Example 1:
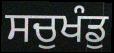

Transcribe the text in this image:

ਸਚੁਖੰਡੁ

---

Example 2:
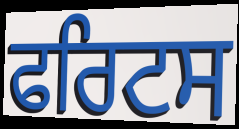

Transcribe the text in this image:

ਫਰਿਟਸ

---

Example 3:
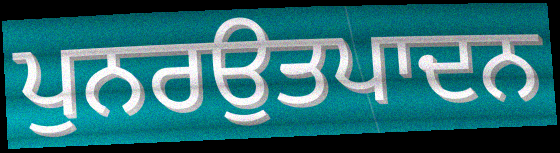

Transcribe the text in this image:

ਪੁਨਰਉਤਪਾਦਨ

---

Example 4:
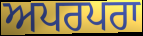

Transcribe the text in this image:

ਅਪਰਪਰਾ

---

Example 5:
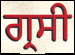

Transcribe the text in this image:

ਗ੍ਰਸੀ